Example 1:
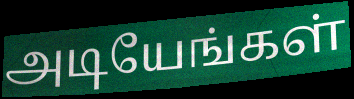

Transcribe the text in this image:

அடியேங்கள்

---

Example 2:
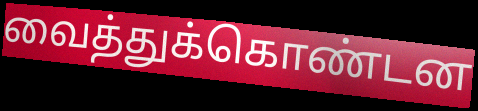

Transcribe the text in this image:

வைத்துக்கொண்டன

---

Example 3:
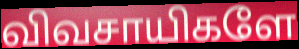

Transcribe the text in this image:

விவசாயிகளே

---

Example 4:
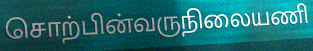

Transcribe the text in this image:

சொற்பின்வருநிலையணி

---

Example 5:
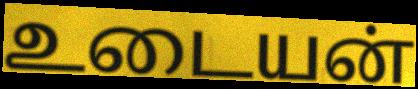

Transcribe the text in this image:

உடையன்